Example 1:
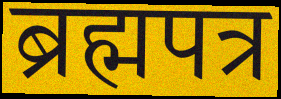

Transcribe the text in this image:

ब्रह्मपत्र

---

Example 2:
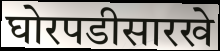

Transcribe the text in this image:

घोरपडीसारखे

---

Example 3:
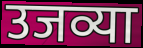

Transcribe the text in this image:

उजव्या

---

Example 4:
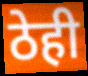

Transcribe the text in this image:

ठेही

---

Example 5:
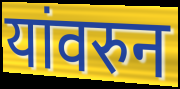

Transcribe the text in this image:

यांवरुन